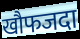
खौफजदा